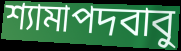
শ্যামাপদবাবু